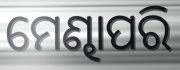
ମେଣ୍ଢାପରି